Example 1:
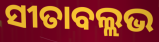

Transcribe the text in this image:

ସୀତାବଲ୍ଲଭ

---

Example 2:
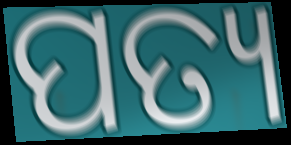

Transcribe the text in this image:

ପତ୍ୟ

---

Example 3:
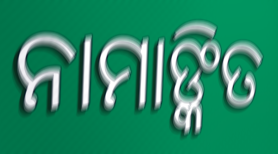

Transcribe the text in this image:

ନାମାଙ୍କିତ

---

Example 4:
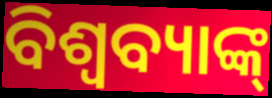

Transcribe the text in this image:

ବିଶ୍ବବ୍ୟାଙ୍କ୍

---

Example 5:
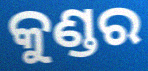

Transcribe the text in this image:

କୁଣ୍ଡର